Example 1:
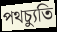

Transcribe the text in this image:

পথচ্যুতি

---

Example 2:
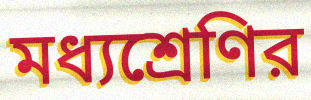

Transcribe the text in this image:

মধ্যশ্রেণির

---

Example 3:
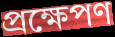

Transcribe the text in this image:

প্রক্ষেপণ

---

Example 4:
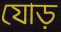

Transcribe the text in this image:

যোড়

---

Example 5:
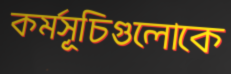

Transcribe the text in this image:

কর্মসূচিগুলোকে